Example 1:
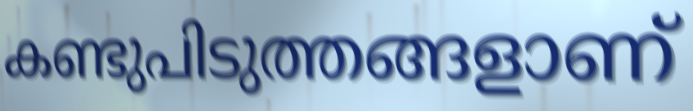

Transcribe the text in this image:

കണ്ടുപിടുത്തങ്ങളാണ്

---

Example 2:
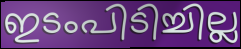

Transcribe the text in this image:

ഇടംപിടിച്ചില്ല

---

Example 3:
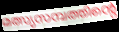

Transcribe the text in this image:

മത്സ്യസമ്പത്തിന്റെ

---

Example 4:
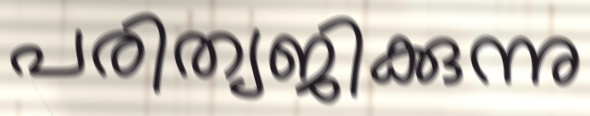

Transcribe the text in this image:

പരിത്യജിക്കുന്നു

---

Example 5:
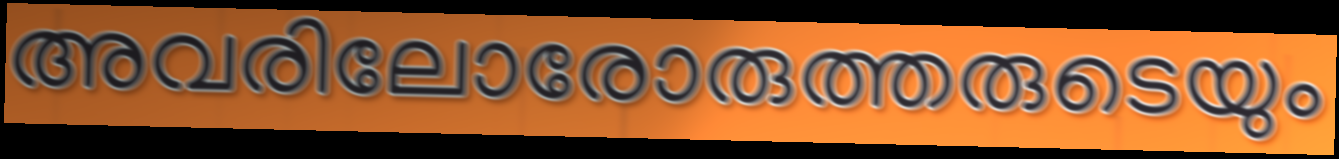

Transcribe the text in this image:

അവരിലോരോരുത്തരുടെയും